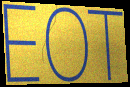
EOT